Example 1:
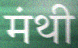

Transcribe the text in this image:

मंथी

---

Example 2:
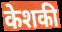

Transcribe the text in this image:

केशकी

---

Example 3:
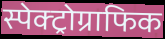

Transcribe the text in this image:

स्पेक्ट्रोग्राफिक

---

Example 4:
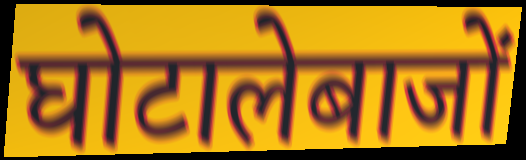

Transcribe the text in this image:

घोटालेबाजों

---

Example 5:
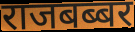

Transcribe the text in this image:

राजबब्बर